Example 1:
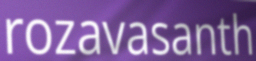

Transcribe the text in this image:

rozavasanth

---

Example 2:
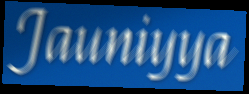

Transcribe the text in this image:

Jauniyya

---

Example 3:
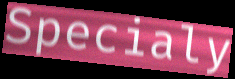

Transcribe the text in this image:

Specialy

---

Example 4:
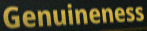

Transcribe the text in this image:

Genuineness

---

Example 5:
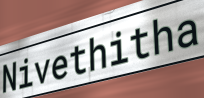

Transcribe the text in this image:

Nivethitha